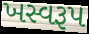
ખસ્વરૂપ